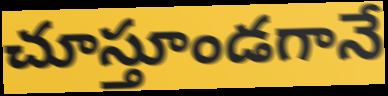
చూస్తూండగానే